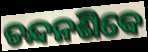
ଚନ୍ଦନଶିବେ